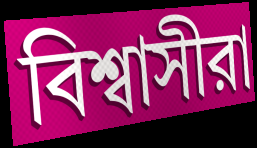
বিশ্বাসীরা